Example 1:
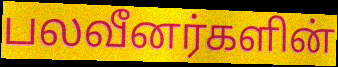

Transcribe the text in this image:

பலவீனர்களின்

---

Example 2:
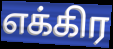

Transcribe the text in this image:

எக்கிர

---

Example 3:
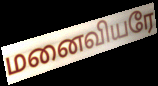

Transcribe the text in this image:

மனைவியரே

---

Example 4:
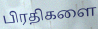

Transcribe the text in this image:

பிரதிகளை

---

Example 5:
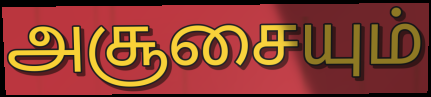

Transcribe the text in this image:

அசூசையும்